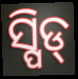
ସ୍ପିଡ୍